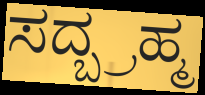
ಸದ್ಬ್ರಹ್ಮ